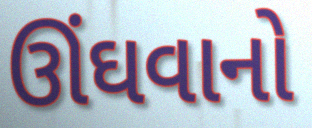
ઊંઘવાનો